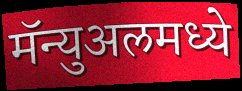
मॅन्युअलमध्ये